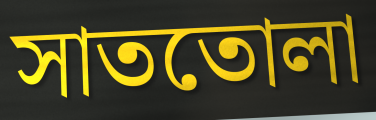
সাততোলা